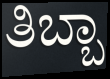
ತಿಬ್ಬಾ